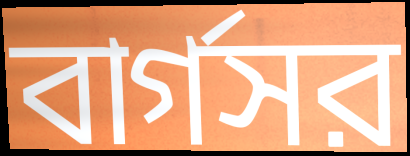
বার্গসর